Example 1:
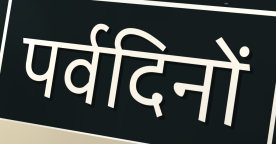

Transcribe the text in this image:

पर्वदिनों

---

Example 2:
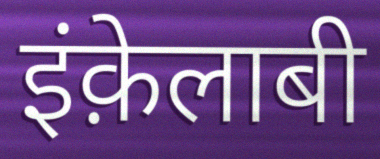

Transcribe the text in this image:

इंक़ेलाबी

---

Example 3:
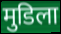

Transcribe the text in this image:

मुडिला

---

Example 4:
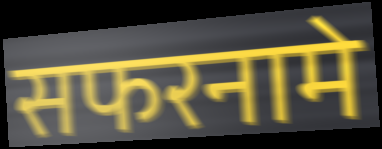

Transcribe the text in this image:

सफरनामे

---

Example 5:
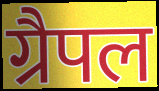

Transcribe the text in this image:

ग्रैपल